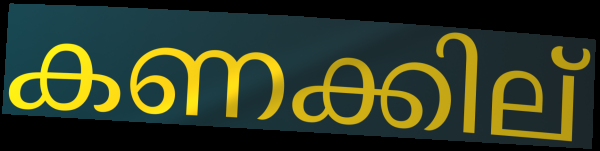
കണക്കില്